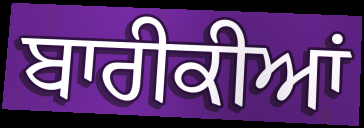
ਬਾਰੀਕੀਆਂ